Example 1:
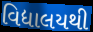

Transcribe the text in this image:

વિદ્યાલયથી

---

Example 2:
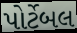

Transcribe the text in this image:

પોર્ટેબલ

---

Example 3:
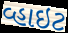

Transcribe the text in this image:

વ્હાઇટ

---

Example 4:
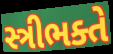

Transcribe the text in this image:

સ્ત્રીભક્તે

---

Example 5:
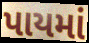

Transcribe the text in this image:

પાયમાં